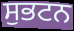
ਸੁਭਟਨ